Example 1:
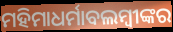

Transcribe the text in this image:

ମହିମାଧର୍ମାବଲମ୍ବୀଙ୍କର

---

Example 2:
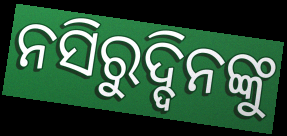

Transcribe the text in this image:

ନସିରୁଦ୍ଦିନଙ୍କୁ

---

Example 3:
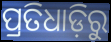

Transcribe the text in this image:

ପ୍ରତିଧାଡ଼ିରୁ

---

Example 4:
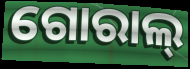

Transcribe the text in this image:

ଗୋରାଲ୍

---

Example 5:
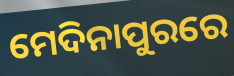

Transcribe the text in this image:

ମେଦିନାପୁରରେ